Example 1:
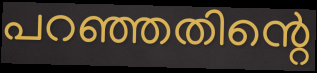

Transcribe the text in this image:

പറഞ്ഞതിന്റെ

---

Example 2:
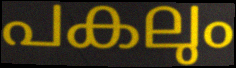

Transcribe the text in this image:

പകലും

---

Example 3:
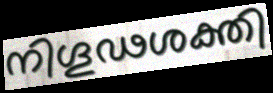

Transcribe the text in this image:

നിഗൂഢശക്തി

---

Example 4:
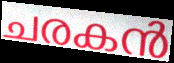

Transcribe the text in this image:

ചരകൻ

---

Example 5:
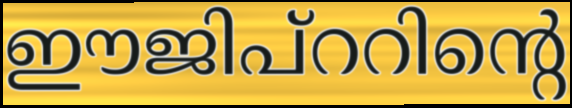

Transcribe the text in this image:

ഈജിപ്ററിന്റെ